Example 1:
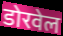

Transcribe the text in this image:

डोरवेल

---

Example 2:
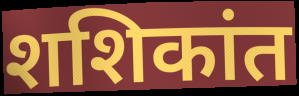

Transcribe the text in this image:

शशिकांत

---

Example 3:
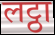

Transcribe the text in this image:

लट्ठा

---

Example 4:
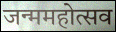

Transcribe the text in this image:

जन्ममहोत्सव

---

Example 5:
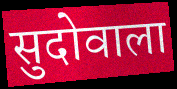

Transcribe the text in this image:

सुदोवाला